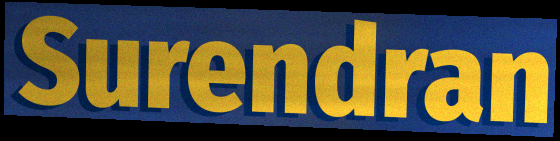
Surendran